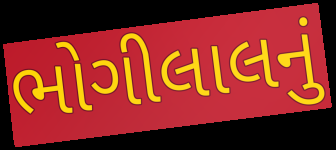
ભોગીલાલનું